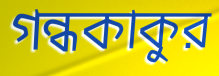
গন্ধকাকুর